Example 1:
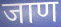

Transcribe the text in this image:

जाण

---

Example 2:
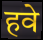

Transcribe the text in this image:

हवे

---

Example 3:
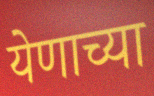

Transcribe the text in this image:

येणाच्या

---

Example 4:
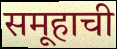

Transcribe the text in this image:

समूहाची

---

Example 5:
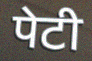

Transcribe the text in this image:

पेटी